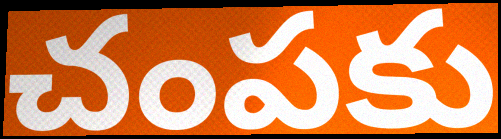
చంపకు